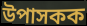
উপাসকক